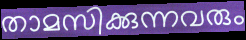
താമസിക്കുന്നവരും